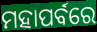
ମହାପର୍ବରେ